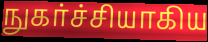
நுகர்ச்சியாகிய